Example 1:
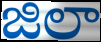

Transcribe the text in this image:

జిలా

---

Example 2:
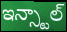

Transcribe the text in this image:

ఇన్స్టాల్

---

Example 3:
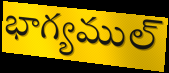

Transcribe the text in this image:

భాగ్యముల్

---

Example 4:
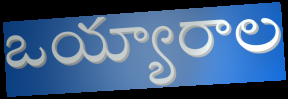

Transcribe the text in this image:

ఒయ్యారాల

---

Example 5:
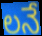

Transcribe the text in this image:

లనే